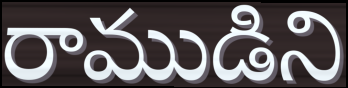
రాముడిని